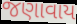
જણાવાય